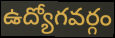
ఉద్యోగవర్గం